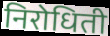
निरोधिती